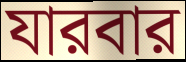
যারবার